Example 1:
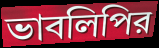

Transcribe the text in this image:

ভাবলিপির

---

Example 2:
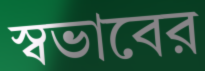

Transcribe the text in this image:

স্বভাবের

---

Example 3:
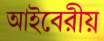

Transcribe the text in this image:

আইবেরীয়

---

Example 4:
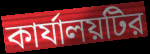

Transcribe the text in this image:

কার্যালয়টির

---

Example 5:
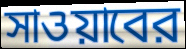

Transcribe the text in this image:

সাওয়াবের